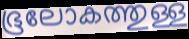
ഭൂലോകത്തുള്ള